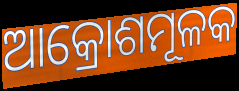
ଆକ୍ରୋଶମୂଳକ